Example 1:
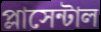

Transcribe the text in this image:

প্লাসেন্টাল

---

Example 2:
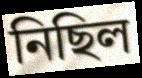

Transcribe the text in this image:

নিছিল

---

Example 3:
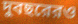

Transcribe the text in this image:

দুবছরেরও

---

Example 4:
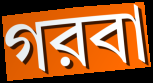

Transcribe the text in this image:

গরবা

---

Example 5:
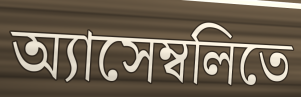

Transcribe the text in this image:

অ্যাসেম্বলিতে